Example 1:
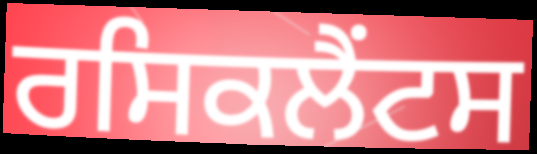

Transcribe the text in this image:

ਰਸਿਕਲੈਂਟਸ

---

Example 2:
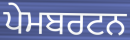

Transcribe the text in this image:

ਪੇਮਬਰਟਨ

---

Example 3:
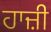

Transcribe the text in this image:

ਹਾਜ਼ੀ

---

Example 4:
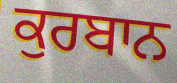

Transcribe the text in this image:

ਕੁਰਬਾਨ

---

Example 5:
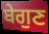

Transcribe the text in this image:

ਬੇਗੁਣ